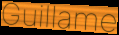
Guillame